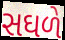
સઘળે